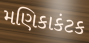
મણિકાકંટક